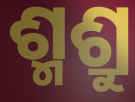
ଶ୍ମଶ୍ରୁ